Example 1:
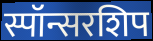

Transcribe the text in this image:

स्पॉन्सरशिप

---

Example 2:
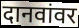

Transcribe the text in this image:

दानवांवर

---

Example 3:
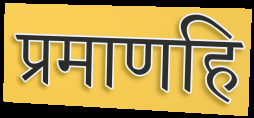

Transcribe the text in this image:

प्रमाणहि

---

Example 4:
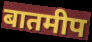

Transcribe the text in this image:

बातमीप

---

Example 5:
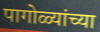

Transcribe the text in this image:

पागोळ्यांच्या